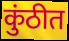
कुंठीत